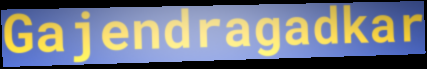
Gajendragadkar